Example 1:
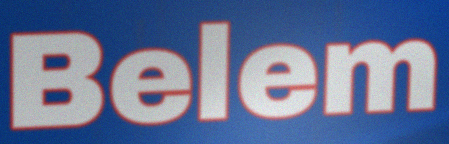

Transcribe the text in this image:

Belem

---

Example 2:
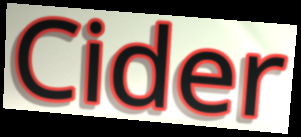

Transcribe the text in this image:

Cider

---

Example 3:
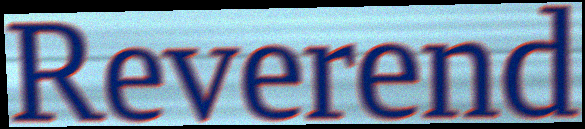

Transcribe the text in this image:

Reverend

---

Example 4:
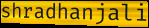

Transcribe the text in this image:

shradhanjali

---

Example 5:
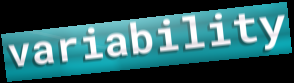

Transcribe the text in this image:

variability